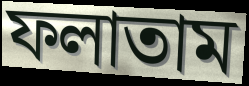
ফলাতাম